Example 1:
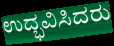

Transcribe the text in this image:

ಉದ್ಭವಿಸಿದರು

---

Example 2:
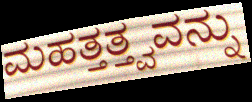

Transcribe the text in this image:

ಮಹತ್ತತ್ತ್ವವನ್ನು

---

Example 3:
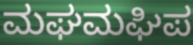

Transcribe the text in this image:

ಮಘಮಘಿಪ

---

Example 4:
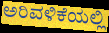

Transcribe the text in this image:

ಅರಿವಳಿಕೆಯಲ್ಲಿ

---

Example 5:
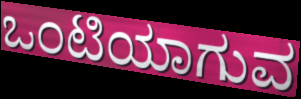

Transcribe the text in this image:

ಒಂಟಿಯಾಗುವ